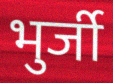
भुर्जी